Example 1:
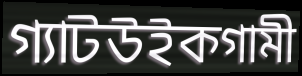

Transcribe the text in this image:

গ্যাটউইকগামী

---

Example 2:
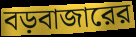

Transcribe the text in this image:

বড়বাজারের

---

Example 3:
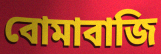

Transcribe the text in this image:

বোমাবাজি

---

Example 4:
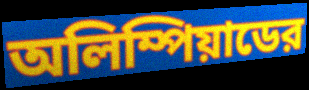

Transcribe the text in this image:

অলিম্পিয়াডের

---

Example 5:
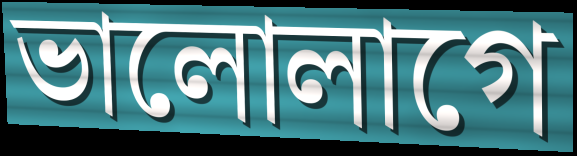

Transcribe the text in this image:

ভালোলাগে